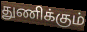
துணிக்கும்